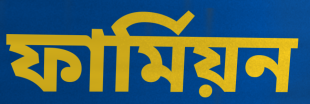
ফাৰ্মিয়ন